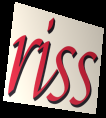
riss